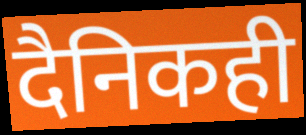
दैनिकही